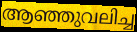
ആഞ്ഞുവലിച്ച